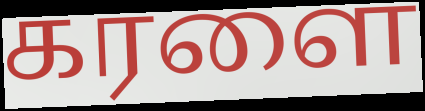
கரளை